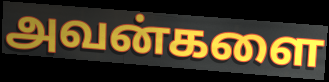
அவன்களை